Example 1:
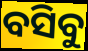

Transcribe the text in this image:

ବସିବୁ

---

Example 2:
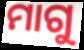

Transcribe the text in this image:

ମାଗୁ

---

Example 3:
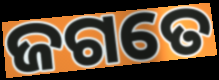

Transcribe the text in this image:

ଜଗତେ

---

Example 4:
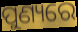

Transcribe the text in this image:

ପୁଣ୍ୟରେ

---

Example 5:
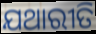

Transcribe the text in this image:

ଯଥାରୀତି